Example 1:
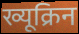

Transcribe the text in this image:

ख्यूक्रिन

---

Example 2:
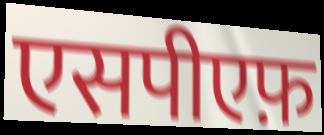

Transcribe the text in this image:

एसपीएफ़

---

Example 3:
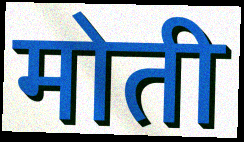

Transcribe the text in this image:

मोती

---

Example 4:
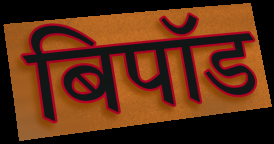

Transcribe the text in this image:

बिपॉड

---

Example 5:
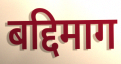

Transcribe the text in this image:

बद्दिमाग